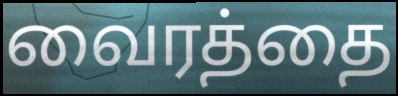
வைரத்தை